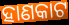
ହାଣକାଟ